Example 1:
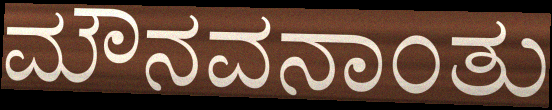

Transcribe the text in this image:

ಮೌನವನಾಂತು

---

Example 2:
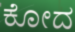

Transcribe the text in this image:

ಕೋದ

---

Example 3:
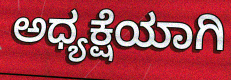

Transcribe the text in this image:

ಅಧ್ಯಕ್ಷೆಯಾಗಿ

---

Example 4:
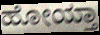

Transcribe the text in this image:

ಹೋಯ್ತಾ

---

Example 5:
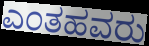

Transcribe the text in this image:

ಎಂತಹವರು